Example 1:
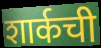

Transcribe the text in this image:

शार्कची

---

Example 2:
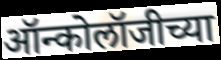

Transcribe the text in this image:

ऑन्कोलॉजीच्या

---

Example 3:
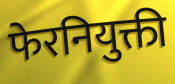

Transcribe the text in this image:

फेरनियुक्ती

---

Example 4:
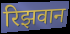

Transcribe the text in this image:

रिझवान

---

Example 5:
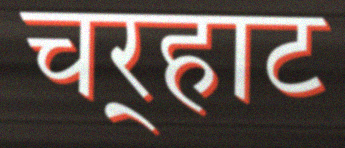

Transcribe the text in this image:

चर्हाट